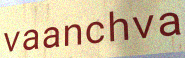
vaanchva